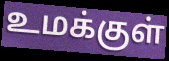
உமக்குள்